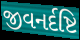
જીવનર્દષ્ટિ